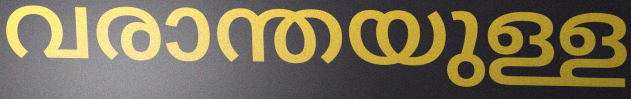
വരാന്തയുള്ള